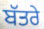
ਬੱਤਰੇ